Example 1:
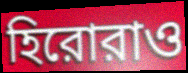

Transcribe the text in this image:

হিরোরাও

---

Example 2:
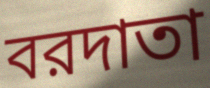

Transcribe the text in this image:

বরদাতা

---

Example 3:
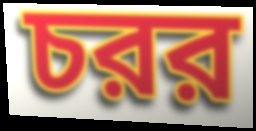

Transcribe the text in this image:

চরর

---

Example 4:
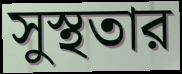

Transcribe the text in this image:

সুস্থতার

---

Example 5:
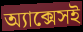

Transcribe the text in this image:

অ্যাক্সেসই